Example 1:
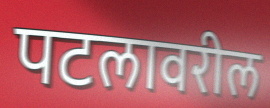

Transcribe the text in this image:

पटलावरील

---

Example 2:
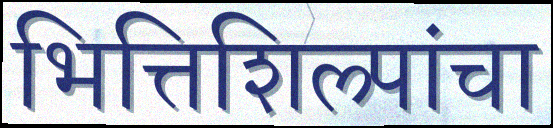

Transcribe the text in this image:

भित्तिशिल्पांचा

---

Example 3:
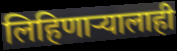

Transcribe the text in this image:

लिहिणाऱ्यालाही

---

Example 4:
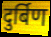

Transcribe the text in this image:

दुर्बिण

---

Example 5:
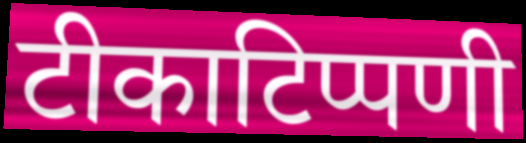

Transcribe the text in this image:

टीकाटिप्पणी